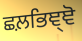
ਛਲ਼ਭਿਞ੍ਞੋ